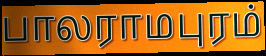
பாலராமபுரம்